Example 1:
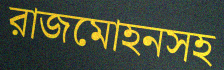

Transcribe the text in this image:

রাজমোহনসহ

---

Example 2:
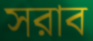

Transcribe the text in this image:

সরাব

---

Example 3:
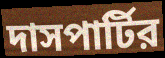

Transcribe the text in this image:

দাসপার্টির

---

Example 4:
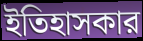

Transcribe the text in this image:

ইতিহাসকার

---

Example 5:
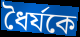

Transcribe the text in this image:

ধৈর্যকে